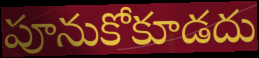
పూనుకోకూడదు